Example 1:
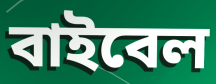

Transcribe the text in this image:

বাইবেল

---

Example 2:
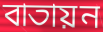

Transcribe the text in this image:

বাতায়ন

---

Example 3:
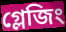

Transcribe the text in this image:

গ্লেজিং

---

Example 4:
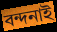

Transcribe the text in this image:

বন্দনাই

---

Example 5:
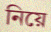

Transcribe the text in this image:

নিয়ে